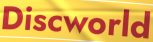
Discworld